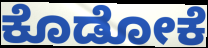
ಕೊಡೋಕೆ